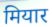
मियार